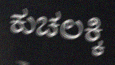
ಕುಚಲಕ್ಕಿ